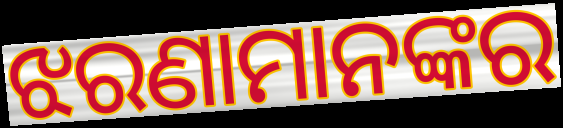
ଝରଣାମାନଙ୍କର